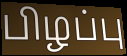
பிழப்பு